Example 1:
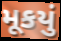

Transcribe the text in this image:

મૂકયું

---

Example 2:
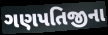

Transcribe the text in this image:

ગણપતિજીના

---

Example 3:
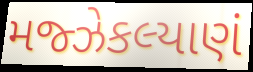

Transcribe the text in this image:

મજ્ઝેકલ્યાણં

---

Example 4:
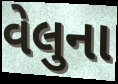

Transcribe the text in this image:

વેલુના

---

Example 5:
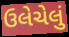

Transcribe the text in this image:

ઉલેચેલું